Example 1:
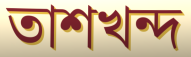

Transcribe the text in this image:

তাশখন্দ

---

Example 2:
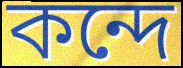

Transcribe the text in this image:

কন্দে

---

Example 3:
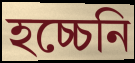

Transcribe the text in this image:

হচ্চেনি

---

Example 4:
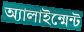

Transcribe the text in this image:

অ্যালাইন্মেন্ট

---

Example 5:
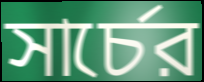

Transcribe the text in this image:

সার্চের